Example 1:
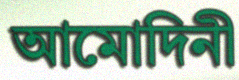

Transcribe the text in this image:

আমোদিনী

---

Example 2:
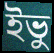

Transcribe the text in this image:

ইভু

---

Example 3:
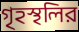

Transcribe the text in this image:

গৃহস্থলির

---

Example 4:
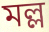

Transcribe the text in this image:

মল্ল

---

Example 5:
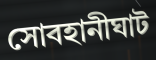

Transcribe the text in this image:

সোবহানীঘাট